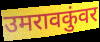
उमरावकुंवर